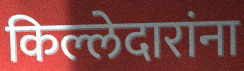
किल्लेदारांना